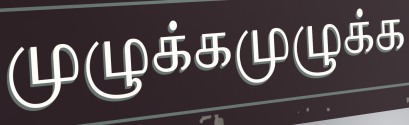
முழுக்கமுழுக்க